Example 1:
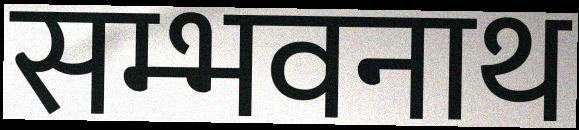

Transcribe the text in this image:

सम्भवनाथ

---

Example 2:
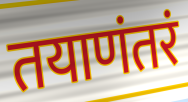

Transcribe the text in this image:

तयाणंतरं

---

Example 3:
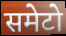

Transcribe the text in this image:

समेटो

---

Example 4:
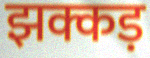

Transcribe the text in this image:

झक्कड़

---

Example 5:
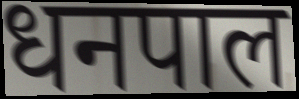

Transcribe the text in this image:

धनपाल